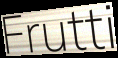
Frutti